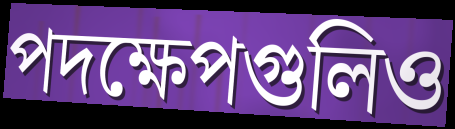
পদক্ষেপগুলিও